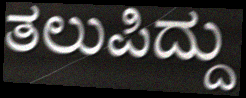
ತಲುಪಿದ್ದು